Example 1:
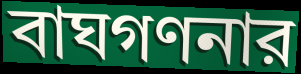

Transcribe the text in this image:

বাঘগণনার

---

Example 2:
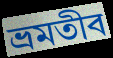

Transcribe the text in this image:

ভ্রমতীব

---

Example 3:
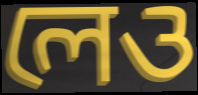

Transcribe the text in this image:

লেও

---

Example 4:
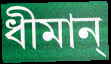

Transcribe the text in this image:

ধীমান্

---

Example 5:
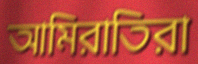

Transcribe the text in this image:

আমিরাতিরা